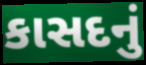
કાસદનું